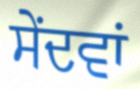
ਸੇਂਦਵਾਂ